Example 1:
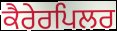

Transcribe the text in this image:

ਕੈਰੇਰਪਿਲਰ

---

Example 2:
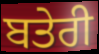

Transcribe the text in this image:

ਬਤੇਰੀ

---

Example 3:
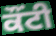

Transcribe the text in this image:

ਕੌਂਟੀ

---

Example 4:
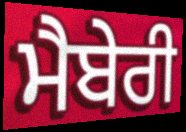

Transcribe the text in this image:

ਮੈਬੇਰੀ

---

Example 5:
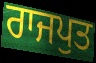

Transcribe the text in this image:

ਰਾਜਪੁਤ